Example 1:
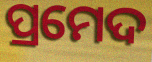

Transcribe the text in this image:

ପ୍ରମେଦ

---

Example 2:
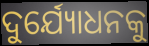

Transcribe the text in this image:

ଦୁର୍ଯ୍ୟୋଧନକୁ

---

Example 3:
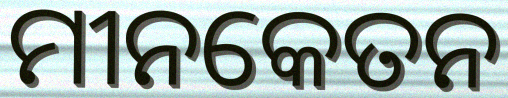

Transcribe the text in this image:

ମୀନକେତନ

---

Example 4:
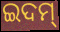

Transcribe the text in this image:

ଇଦମ୍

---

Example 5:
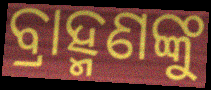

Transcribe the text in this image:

ବ୍ରାହ୍ମଣଙ୍କୁ